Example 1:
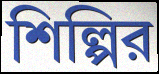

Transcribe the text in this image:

শিল্পির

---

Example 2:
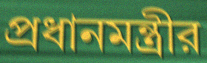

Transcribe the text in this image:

প্রধানমন্ত্রীর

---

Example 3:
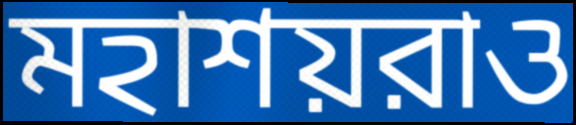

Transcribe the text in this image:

মহাশয়রাও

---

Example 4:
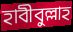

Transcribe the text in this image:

হাবীবুল্লাহ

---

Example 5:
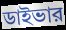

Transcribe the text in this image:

ডাইভার